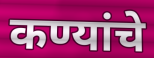
कण्यांचे